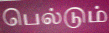
பெல்டும்